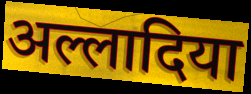
अल्लादिया